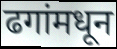
ढगांमधून